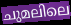
ചുമലിലെ